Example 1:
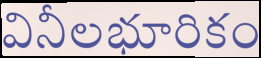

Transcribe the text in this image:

వినీలభూరికం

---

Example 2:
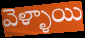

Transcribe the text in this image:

వెళ్ళాయి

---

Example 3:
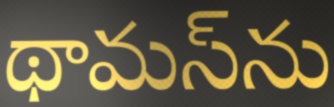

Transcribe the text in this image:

థామస్‌ను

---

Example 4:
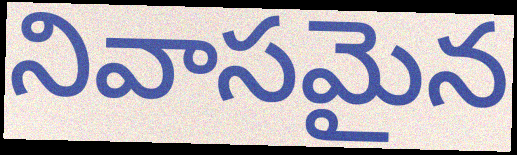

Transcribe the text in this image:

నివాసమైన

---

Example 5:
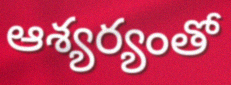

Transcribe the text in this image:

ఆశ్యర్యంతో